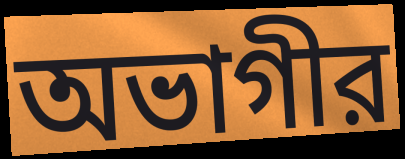
অভাগীর